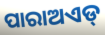
ପାରାଅଏଡ୍